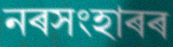
নৰসংহাৰৰ